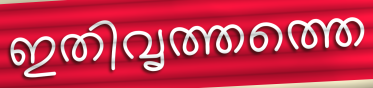
ഇതിവൃത്തത്തെ